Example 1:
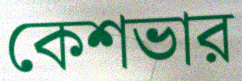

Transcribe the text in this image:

কেশভার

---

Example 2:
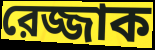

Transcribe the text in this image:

রেজ্জাক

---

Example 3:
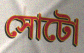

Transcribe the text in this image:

সোটো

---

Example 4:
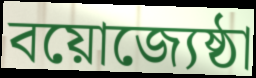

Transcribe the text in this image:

বয়োজ্যেষ্ঠা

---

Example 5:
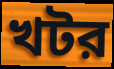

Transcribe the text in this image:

খটর